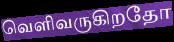
வெளிவருகிறதோ